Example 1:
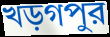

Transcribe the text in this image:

খড়গপুর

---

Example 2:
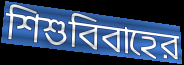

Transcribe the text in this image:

শিশুবিবাহের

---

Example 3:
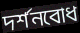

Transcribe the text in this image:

দর্শনবোধ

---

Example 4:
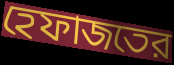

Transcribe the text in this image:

হেফাজতের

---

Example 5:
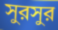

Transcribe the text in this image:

সুরসুর